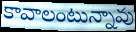
కావాలంటున్నావు